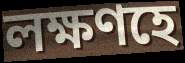
লক্ষণহে